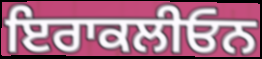
ਇਰਾਕਲੀਓਨ